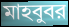
মাহবুবর